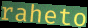
raheto